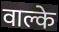
वाल्के